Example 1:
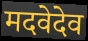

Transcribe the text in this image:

मदवेदेव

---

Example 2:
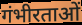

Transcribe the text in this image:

गंभीरताओं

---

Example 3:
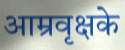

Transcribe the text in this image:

आम्रवृक्षके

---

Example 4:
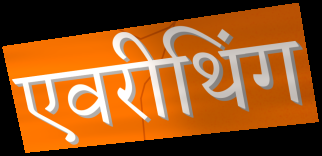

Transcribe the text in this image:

एवरीथिंग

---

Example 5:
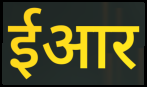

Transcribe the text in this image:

ईआर